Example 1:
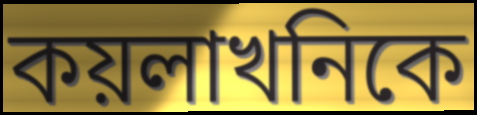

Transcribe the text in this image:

কয়লাখনিকে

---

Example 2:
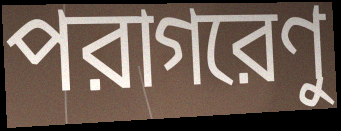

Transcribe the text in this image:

পরাগরেণু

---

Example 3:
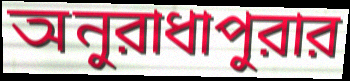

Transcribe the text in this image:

অনুরাধাপুরার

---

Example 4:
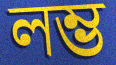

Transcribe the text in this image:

লম্ভ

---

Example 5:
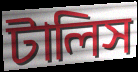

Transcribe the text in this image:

টালিস